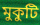
মুকুটি